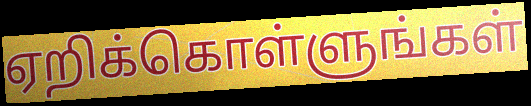
ஏறிக்கொள்ளுங்கள்